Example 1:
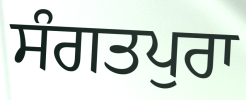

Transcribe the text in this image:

ਸੰਗਤਪੁਰਾ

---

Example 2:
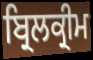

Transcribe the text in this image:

ਬ੍ਰਿਲਕ੍ਰੀਮ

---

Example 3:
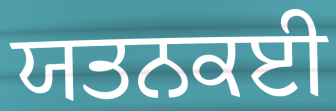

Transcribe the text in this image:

ਯਤਨਕਈ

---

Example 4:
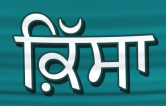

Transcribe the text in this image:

ਕ਼ਿੱਸਾ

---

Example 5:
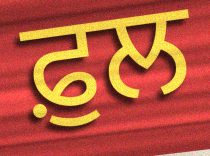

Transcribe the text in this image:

ਫ਼ੁਲ